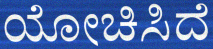
ಯೋಚಿಸಿದೆ